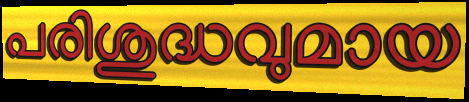
പരിശുദ്ധവുമായ